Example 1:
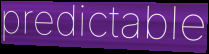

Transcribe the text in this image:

predictable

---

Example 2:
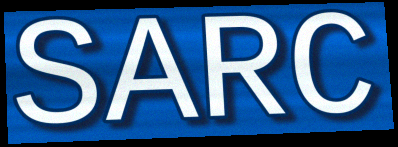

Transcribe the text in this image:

SARC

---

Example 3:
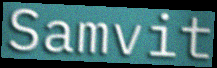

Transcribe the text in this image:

Samvit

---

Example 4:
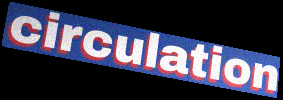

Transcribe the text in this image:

circulation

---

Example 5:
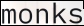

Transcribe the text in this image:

monks